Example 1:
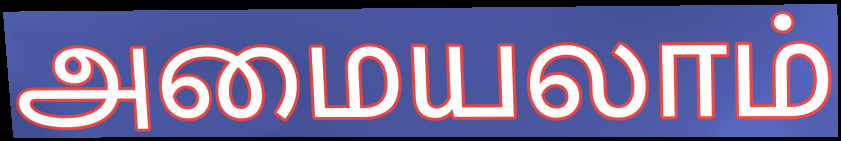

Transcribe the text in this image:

அமையலாம்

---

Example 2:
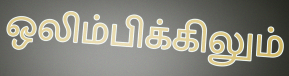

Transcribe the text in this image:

ஒலிம்பிக்கிலும்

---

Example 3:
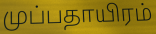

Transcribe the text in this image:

முப்பதாயிரம்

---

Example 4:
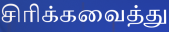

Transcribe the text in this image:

சிரிக்கவைத்து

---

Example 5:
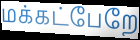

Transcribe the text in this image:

மக்கட்பேறே